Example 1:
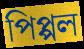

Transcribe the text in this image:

পিপ্পল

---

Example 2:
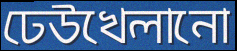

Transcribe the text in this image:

ঢেউখেলানো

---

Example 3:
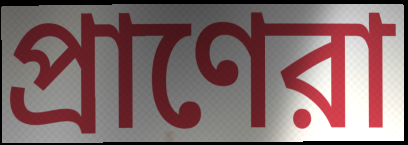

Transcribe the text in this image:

প্রাণেরা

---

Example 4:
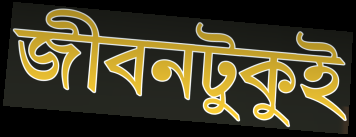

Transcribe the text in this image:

জীবনটুকুই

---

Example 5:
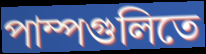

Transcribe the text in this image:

পাম্পগুলিতে